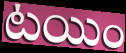
టయిం